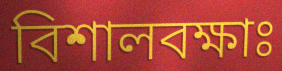
বিশালবক্ষাঃ